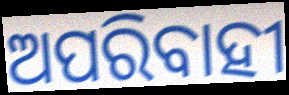
ଅପରିବାହୀ